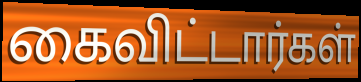
கைவிட்டார்கள்